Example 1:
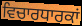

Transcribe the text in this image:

ਵਿਚਾਰਧਾਰਕਾਂ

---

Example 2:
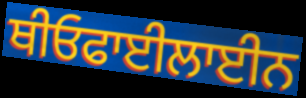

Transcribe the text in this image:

ਥੀਓਫਾਈਲਾਈਨ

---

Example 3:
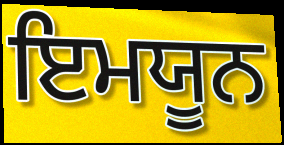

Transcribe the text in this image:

ਇਮਯੂਨ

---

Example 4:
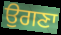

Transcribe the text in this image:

ਉਗਣਾ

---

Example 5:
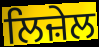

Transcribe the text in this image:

ਲਿਜ਼ੇਲ